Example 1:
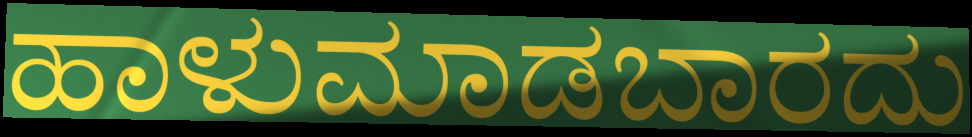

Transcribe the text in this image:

ಹಾಳುಮಾಡಬಾರದು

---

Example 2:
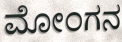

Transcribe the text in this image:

ಮೋಂಗನ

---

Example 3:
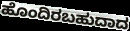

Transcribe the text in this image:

ಹೊಂದಿರಬಹುದಾದ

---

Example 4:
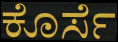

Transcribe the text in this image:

ಕೊರ್ಸೆ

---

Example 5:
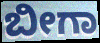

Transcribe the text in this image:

ಬೀಗಾ